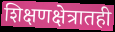
शिक्षणक्षेत्रातही